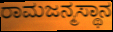
ರಾಮಜನ್ಮಸ್ಥಾನ